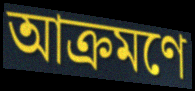
আক্ৰমণে